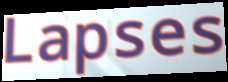
Lapses